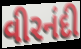
વીરનંદી